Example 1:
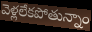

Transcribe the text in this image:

వెళ్లలేకపోతున్నాం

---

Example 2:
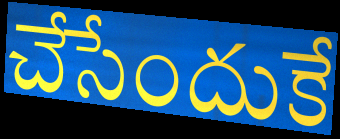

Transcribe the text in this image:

చేసేందుకే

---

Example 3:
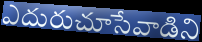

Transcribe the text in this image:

ఎదురుచూసేవాడిని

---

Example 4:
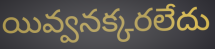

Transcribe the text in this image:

యివ్వనక్కరలేదు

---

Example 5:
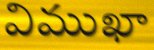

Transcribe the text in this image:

విముఖా